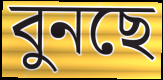
বুনছে